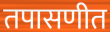
तपासणीत